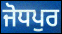
ਜੋਧਪੁਰ